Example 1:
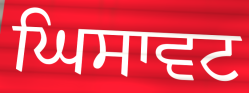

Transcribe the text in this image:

ਘਿਸਾਵਟ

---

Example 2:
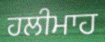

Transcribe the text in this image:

ਹਲੀਮਾਹ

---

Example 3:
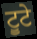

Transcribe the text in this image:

ਟੂਟੇ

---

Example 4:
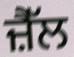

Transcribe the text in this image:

ਜ਼ੈੱਲ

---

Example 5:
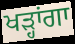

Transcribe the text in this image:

ਖੜ੍ਹਾਂਗਾ